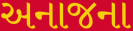
અનાજના